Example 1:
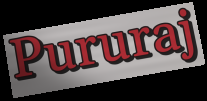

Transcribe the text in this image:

Pururaj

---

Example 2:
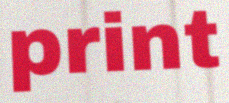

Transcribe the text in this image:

print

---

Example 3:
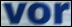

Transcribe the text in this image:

vor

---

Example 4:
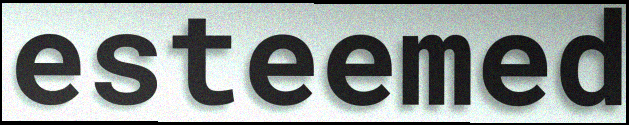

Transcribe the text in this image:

esteemed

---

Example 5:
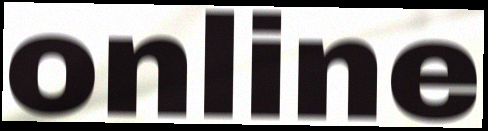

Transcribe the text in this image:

online